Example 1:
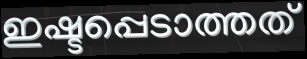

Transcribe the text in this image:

ഇഷ്ടപ്പെടാത്തത്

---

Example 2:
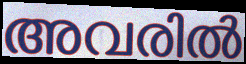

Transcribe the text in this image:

അവരിൽ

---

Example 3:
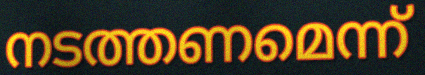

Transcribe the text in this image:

നടത്തണമെന്ന്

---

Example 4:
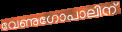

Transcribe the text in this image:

വേണുഗോപാലിന്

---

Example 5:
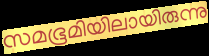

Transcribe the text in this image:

സമഭൂമിയിലായിരുന്നു